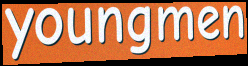
youngmen